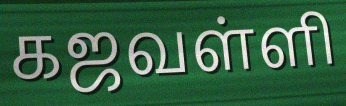
கஜவள்ளி